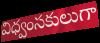
విధ్వంసకులుగా